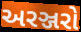
અરઞ્જરો